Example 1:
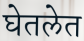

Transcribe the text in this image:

घेतलेत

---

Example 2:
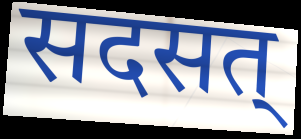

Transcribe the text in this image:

सदसत्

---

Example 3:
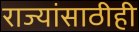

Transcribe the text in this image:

राज्यांसाठीही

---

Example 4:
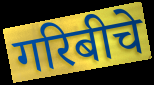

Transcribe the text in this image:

गरिबीचे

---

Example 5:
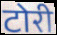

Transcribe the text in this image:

टोरी